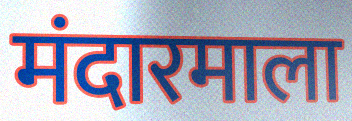
मंदारमाला